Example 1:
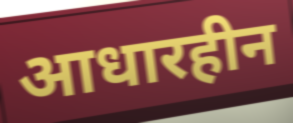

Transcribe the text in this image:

आधारहीन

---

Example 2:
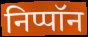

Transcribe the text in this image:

निप्पॉन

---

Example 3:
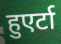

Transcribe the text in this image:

हुएर्टा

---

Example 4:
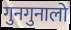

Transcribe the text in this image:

गुनगुनालो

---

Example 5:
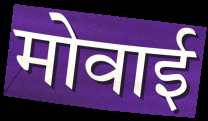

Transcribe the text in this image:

मोवाई